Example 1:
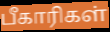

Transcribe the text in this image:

பீகாரிகள்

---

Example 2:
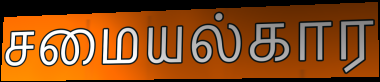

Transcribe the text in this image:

சமையல்கார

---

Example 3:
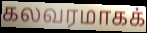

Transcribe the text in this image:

கலவரமாகக்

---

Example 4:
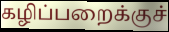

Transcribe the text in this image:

கழிப்பறைக்குச்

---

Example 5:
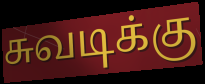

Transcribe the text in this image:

சுவடிக்கு